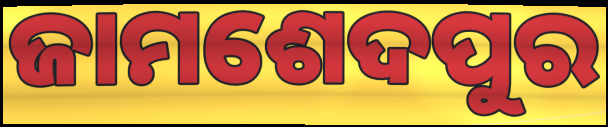
ଜାମଶେଦପୁର